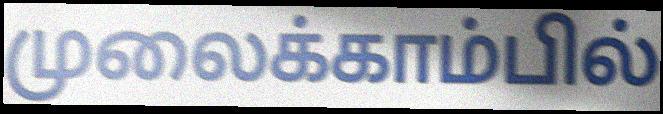
முலைக்காம்பில்